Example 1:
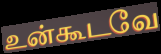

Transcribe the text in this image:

உன்கூடவே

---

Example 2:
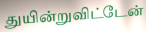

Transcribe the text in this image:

துயின்றுவிட்டேன்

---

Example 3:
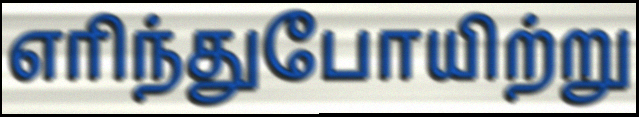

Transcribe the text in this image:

எரிந்துபோயிற்று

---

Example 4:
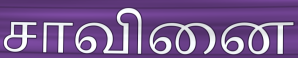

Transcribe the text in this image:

சாவினை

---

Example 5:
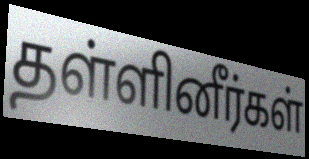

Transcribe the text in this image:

தள்ளினீர்கள்